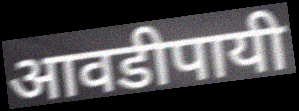
आवडीपायी